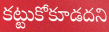
కట్టుకోకూడదని